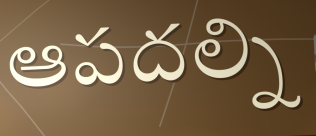
ఆపదల్ని